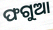
ଫଗୁଆ